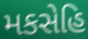
મકસેહિ